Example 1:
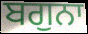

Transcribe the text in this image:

ਬਗੁਨਾ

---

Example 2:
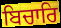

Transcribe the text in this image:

ਬਿਚਾਰਿ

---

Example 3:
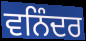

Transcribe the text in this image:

ਵਨਿੰਦਰ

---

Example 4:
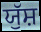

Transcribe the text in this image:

ਯੁੱਸ਼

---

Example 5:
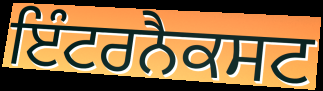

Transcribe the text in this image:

ਇੰਟਰਨੈਕਸਟ